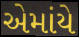
એમાંયે